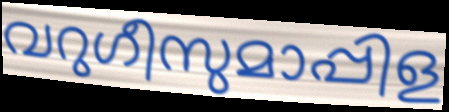
വറുഗീസുമാപ്പിള